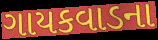
ગાયકવાડના